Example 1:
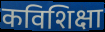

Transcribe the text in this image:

कविशिक्षा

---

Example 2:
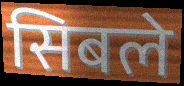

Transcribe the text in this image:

सिबले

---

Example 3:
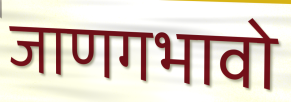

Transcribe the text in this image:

जाणगभावो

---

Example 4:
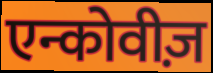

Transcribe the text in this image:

एन्कोवीज़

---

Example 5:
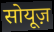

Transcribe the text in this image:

सोयूज़